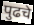
पुढचे